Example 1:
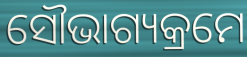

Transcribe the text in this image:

ସୌଭାଗ୍ୟକ୍ରମେ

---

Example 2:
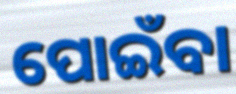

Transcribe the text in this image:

ପୋଇଁବା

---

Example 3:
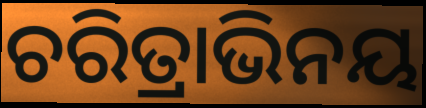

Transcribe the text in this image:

ଚରିତ୍ରାଭିନୟ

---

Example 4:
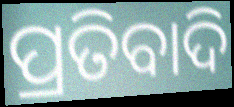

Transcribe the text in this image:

ପ୍ରତିବାଦି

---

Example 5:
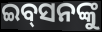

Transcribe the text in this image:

ଇବ୍‌ସନଙ୍କୁ